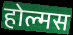
होल्मस